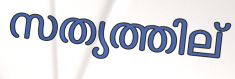
സത്യത്തില്